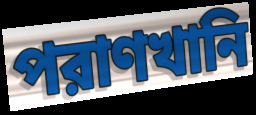
পরাণখানি